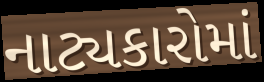
નાટ્યકારોમાં